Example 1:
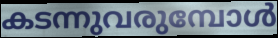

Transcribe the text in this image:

കടന്നുവരുമ്പോൾ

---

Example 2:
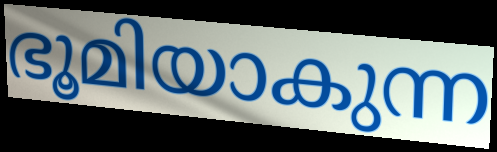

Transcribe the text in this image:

ഭൂമിയാകുന്ന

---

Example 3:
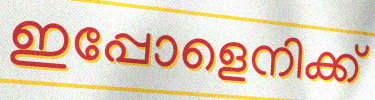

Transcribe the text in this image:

ഇപ്പോളെനിക്ക്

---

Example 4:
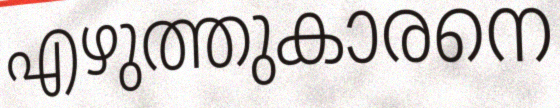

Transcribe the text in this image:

എഴുത്തുകാരനെ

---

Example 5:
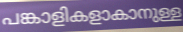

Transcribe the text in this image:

പങ്കാളികളാകാനുള്ള